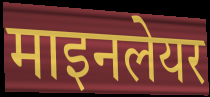
माइनलेयर